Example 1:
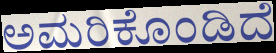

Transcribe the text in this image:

ಅಮರಿಕೊಂಡಿದೆ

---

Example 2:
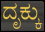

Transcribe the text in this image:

ದೃಕ್ಕು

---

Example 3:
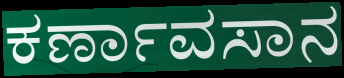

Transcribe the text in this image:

ಕರ್ಣಾವಸಾನ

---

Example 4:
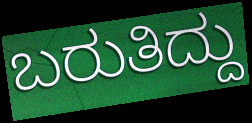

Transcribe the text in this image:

ಬರುತಿದ್ದು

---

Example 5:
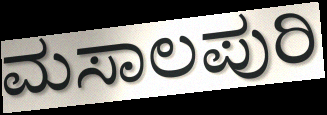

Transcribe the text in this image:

ಮಸಾಲಪುರಿ